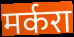
मर्करा